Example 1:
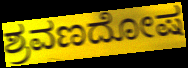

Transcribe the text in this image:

ಶ್ರವಣದೋಷ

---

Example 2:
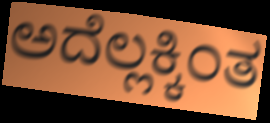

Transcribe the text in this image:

ಅದೆಲ್ಲಕ್ಕಿಂತ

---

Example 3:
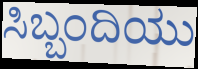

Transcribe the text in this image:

ಸಿಬ್ಬಂದಿಯು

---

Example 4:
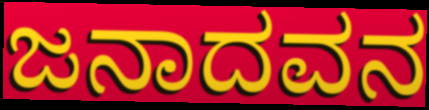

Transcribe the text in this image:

ಜನಾದವನ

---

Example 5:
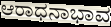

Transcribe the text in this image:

ಆರಾಧನಾಭಾವ